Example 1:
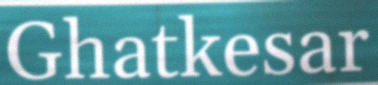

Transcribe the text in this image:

Ghatkesar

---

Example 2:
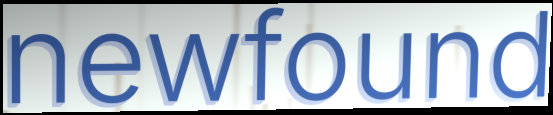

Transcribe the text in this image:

newfound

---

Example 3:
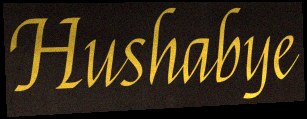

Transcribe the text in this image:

Hushabye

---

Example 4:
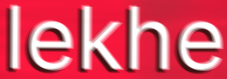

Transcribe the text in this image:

lekhe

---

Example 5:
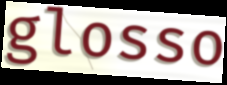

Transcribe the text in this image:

glosso